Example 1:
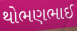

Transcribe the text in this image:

થોભણભાઈ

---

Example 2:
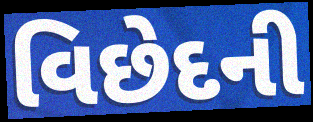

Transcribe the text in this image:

વિછેદની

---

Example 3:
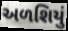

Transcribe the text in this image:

અળશિયું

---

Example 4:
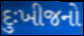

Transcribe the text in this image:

દુઃખીજનો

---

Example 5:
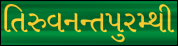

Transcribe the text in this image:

તિરુવનન્તપુરમ્થી